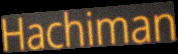
Hachiman